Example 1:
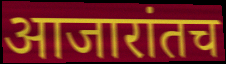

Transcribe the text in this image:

आजारांतच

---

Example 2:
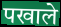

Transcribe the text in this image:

पखाले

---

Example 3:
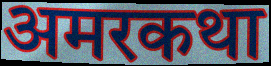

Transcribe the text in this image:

अमरकथा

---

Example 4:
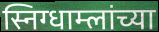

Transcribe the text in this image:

स्निग्धाम्लांच्या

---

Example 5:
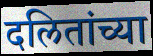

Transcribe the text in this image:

दलितांच्या